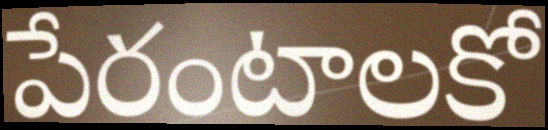
పేరంటాలకో